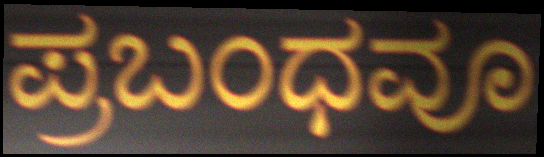
ಪ್ರಬಂಧವೂ